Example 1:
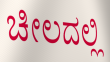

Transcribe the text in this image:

ಚೀಲದಲ್ಲಿ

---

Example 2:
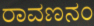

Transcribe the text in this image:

ರಾವಣನಂ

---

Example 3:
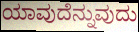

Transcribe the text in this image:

ಯಾವುದೆನ್ನುವುದು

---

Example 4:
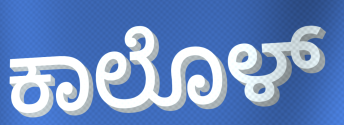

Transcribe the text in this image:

ಕಾಲೊಳ್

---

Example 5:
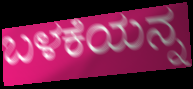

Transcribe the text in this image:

ಬಳಕೆಯನ್ನ